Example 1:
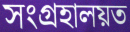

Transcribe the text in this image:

সংগ্ৰহালয়ত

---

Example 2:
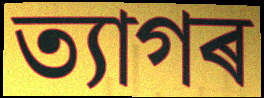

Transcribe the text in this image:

ত্যাগৰ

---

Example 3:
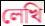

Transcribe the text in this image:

লেখি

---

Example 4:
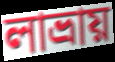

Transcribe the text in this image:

লাভ্ৰায়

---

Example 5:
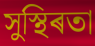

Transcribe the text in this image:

সুস্থিৰতা